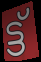
ട്ട്